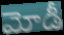
మోడీ